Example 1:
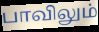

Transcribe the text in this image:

பாவிலும்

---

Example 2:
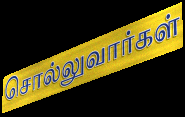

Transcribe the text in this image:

சொல்லுவார்கள்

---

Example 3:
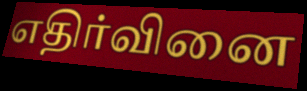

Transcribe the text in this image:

எதிர்வினை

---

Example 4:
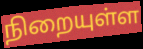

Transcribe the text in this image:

நிறையுள்ள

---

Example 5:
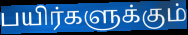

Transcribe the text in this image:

பயிர்களுக்கும்